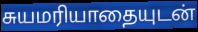
சுயமரியாதையுடன்